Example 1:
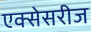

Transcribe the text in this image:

एक्सेसरीज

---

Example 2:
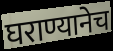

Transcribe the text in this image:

घराण्यानेच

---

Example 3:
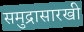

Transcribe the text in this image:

समुद्रासारखी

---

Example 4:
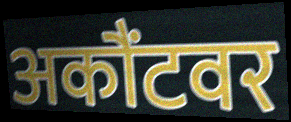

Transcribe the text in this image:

अकौंटवर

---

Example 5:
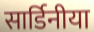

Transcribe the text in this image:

सार्डिनीया